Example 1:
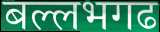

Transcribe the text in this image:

बल्लभगढ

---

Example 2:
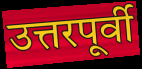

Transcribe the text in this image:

उत्तरपूर्वी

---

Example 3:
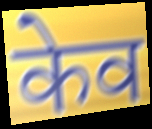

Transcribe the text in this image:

केव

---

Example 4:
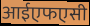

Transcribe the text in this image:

आईएफएसी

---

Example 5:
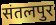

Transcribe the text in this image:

संतलपुर